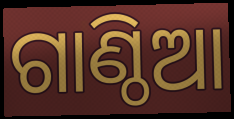
ଗାଣ୍ଠିଆ